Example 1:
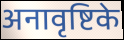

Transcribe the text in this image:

अनावृष्टिके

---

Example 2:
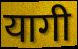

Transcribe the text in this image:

यागी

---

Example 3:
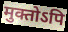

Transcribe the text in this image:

मुक्तोऽपि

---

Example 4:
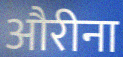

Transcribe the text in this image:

औरीना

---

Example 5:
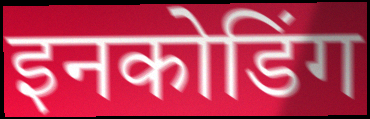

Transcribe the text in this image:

इनकोडिंग